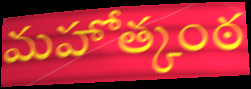
మహోత్కంఠ